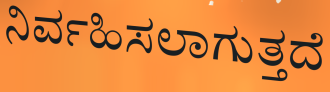
ನಿರ್ವಹಿಸಲಾಗುತ್ತದೆ